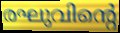
രഘുവിന്റെ